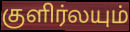
குளிர்லயும்